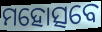
ମହୋତ୍ସବେ